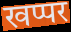
खप्पर